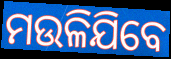
ମଉଳିଯିବେ